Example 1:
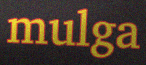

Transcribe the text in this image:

mulga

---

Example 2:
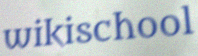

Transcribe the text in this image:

wikischool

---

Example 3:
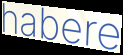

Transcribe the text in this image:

habere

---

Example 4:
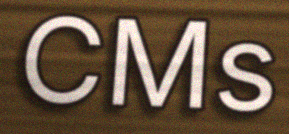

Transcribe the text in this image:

CMs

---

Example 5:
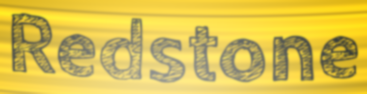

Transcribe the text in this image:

Redstone